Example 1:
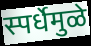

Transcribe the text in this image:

स्पर्धेमुळे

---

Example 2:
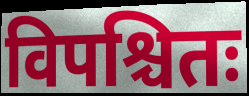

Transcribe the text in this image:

विपश्चितः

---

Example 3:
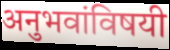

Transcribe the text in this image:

अनुभवांविषयी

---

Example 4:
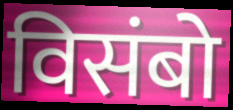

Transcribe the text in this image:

विसंबो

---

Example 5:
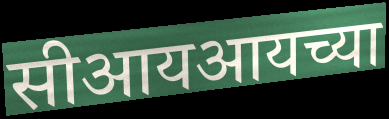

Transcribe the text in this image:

सीआयआयच्या